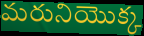
మరునియొక్క